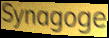
Synagoge